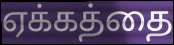
ஏக்கத்தை